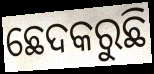
ଛେଦକରୁଛି